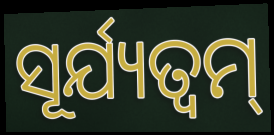
ସୂର୍ଯ୍ୟତ୍ୱମ୍